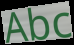
Abc